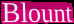
Blount